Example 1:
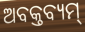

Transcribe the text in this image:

ଅବକ୍ତବ୍ୟମ୍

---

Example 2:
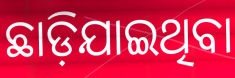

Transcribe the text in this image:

ଛାଡ଼ିଯାଇଥିବା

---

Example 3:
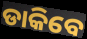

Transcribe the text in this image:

ଡାକିବେ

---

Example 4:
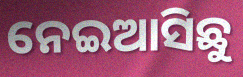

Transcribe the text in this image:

ନେଇଆସିଛୁ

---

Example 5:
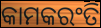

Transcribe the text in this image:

କାମକରଂତି